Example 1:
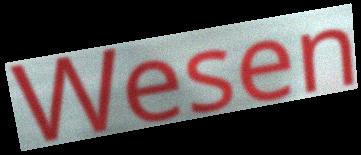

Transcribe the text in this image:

Wesen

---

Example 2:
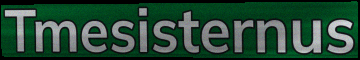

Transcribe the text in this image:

Tmesisternus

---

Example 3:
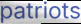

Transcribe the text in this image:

patriots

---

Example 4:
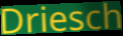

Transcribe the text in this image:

Driesch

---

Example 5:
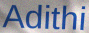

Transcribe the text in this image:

Adithi